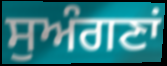
ਸੁਅੰਗਣਾਂ